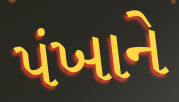
પંખાને